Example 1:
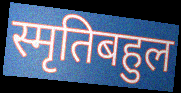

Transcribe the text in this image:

स्मृतिबहुल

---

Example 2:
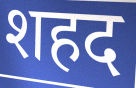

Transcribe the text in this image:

शहद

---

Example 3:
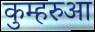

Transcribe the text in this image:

कुम्हरुआ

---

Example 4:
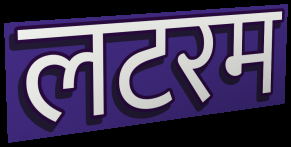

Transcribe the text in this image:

लटरम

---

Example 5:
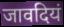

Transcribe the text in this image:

जावदियं